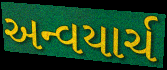
અન્વયાર્ચ